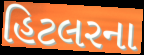
હિટલરના